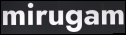
mirugam